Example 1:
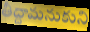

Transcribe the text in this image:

తీద్దామనుకుని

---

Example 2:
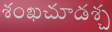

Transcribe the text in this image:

శంఖచూడశ్చ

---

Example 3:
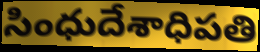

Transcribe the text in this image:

సింధుదేశాధిపతి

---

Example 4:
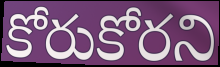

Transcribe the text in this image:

కోరుకోరని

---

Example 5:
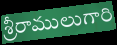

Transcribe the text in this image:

శ్రీరాములుగారి